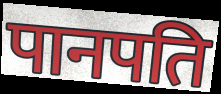
पानपति